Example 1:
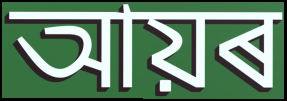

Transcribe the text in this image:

আয়ৰ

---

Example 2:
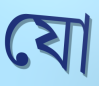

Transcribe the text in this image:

যো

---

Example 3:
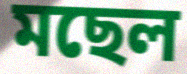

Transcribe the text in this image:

মছেল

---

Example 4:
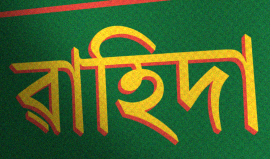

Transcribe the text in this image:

ৱাহিদা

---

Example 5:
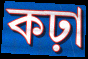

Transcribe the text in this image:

কঢ়া